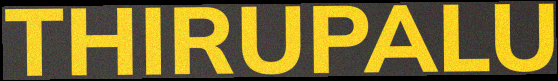
THIRUPALU